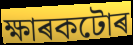
ক্ষাৰকটোৰ